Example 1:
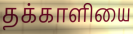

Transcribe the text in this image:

தக்காளியை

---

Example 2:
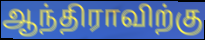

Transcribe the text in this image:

ஆந்திராவிற்கு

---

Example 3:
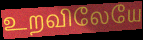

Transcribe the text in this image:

உறவிலேயே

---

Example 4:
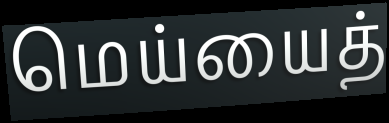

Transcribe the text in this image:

மெய்யைத்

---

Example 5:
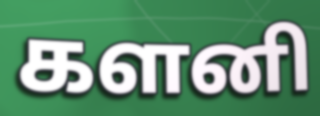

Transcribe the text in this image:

களனி